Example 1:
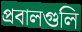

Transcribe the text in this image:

প্রবালগুলি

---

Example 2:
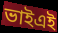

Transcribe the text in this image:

ভাইএই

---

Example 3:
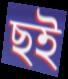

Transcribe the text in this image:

ছই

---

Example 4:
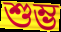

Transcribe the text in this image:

শুম্ভ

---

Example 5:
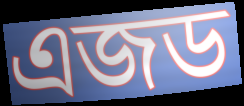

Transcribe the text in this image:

এজড